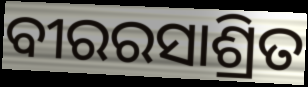
ବୀରରସାଶ୍ରିତ